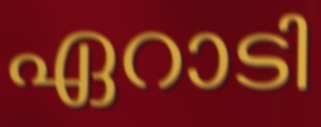
ഏറാടി